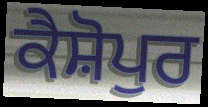
ਕੈਸ਼ੋਪੁਰ